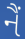
નૈં